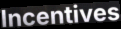
Incentives